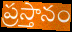
ప్రస్తానం